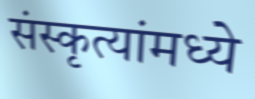
संस्कृत्यांमध्ये